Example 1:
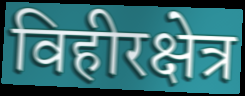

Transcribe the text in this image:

विहीरक्षेत्र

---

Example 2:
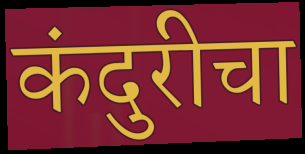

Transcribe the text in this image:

कंदुरीचा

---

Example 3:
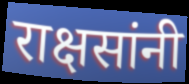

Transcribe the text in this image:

राक्षसांनी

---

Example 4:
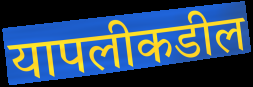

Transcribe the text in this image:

यापलीकडील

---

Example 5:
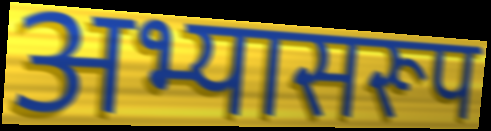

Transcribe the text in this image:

अभ्यासरूप